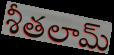
శీతలామ్